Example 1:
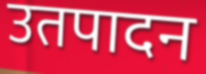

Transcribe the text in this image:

उतपादन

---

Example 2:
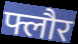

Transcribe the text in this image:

फ्लौर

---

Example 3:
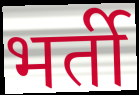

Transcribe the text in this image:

भर्ती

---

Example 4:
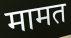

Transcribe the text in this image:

मामत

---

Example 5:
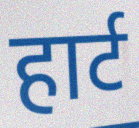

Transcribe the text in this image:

हार्ट